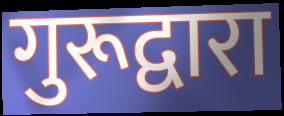
गुरूद्वारा